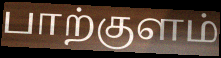
பாற்குளம்